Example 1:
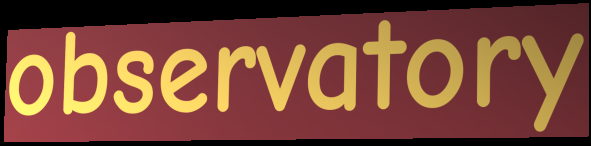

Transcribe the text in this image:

observatory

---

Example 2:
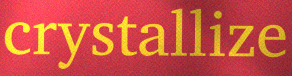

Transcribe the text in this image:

crystallize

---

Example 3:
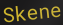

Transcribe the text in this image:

Skene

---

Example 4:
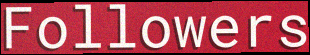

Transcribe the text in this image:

Followers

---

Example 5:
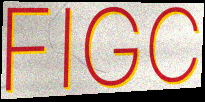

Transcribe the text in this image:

FIGC